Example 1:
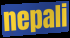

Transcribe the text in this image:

nepali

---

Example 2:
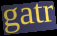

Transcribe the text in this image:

gatr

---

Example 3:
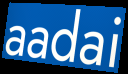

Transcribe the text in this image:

aadai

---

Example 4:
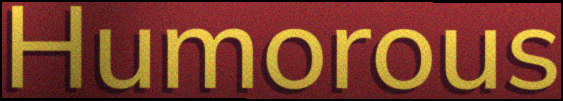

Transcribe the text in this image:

Humorous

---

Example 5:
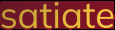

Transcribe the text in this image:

satiate